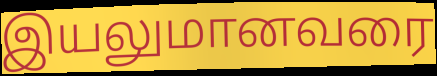
இயலுமானவரை